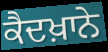
ਕੈਦਖ਼ਾਨੇ